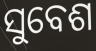
ସୁବେଶ